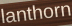
lanthorn